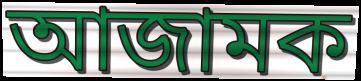
আজামক